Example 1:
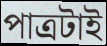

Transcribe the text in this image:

পাত্রটাই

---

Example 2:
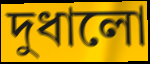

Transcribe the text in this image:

দুধালো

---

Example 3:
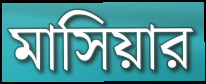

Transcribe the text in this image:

মাসিয়ার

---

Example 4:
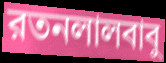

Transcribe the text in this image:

রতনলালবাবু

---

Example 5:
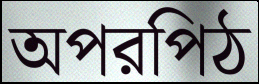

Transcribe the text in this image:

অপরপিঠ